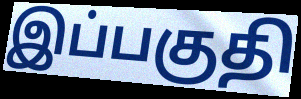
இப்பகுதி